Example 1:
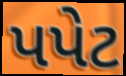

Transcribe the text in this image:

પપેટ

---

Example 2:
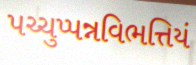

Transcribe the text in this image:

પચ્ચુપ્પન્નવિભત્તિયં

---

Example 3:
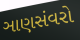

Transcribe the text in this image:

ઞાણસંવરો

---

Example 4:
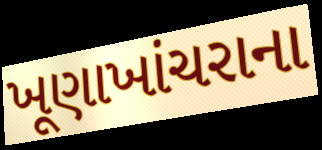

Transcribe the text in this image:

ખૂણાખાંચરાના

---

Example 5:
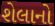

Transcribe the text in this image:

શેલાનો